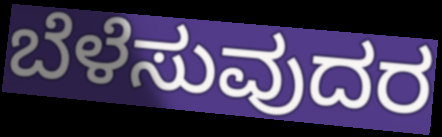
ಬೆಳೆಸುವುದರ